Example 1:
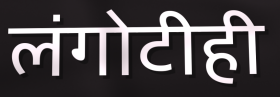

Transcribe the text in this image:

लंगोटीही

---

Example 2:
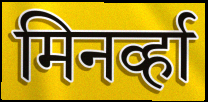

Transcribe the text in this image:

मिनर्व्हा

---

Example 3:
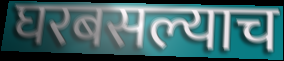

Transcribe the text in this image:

घरबसल्याच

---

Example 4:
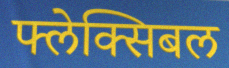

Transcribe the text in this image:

फ्लेक्सिबल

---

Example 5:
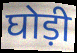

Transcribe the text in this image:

घोड़ी